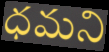
ధమని